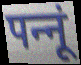
पन्नूं